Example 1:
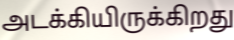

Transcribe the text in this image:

அடக்கியிருக்கிறது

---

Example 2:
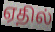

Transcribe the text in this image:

ஏதில்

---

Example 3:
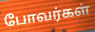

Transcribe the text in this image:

போவர்கள்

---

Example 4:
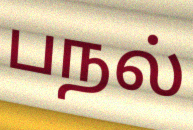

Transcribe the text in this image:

பநல்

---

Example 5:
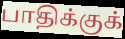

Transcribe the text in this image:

பாதிக்குக்